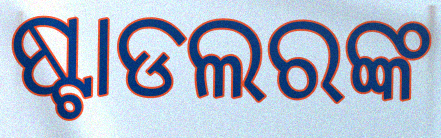
ଷ୍ଟାଡଲରଙ୍କ